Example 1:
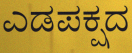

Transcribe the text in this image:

ಎಡಪಕ್ಷದ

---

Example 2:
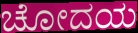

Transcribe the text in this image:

ಚೋದಯ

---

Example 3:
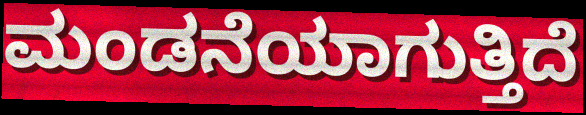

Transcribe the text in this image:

ಮಂಡನೆಯಾಗುತ್ತಿದೆ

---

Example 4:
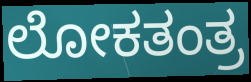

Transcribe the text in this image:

ಲೋಕತಂತ್ರ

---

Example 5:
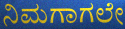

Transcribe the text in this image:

ನಿಮಗಾಗಲೇ